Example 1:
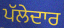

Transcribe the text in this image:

ਪੱਲੇਦਾਰ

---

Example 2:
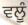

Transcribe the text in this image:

ਵਲੂੰ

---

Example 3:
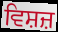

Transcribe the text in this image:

ਵਿਸ਼ਜ਼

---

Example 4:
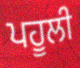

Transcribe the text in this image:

ਪਹੂਲੀ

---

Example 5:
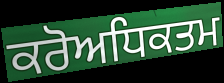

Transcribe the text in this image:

ਕਰੋਅਧਿਕਤਮ